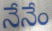
నేనేం